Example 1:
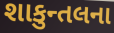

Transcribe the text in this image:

શાકુન્તલના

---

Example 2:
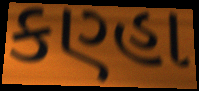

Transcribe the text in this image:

કણ્હા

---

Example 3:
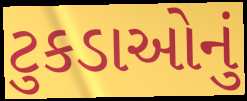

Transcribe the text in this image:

ટુકડાઓનું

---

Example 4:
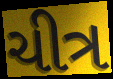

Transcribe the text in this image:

ચીત્ર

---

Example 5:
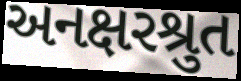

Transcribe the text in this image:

અનક્ષરશ્રુત